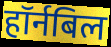
हॉर्नबिल